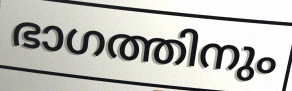
ഭാഗത്തിനും